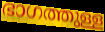
ഭാഗത്തുള്ള